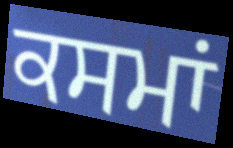
ਕਸਮਾਂ